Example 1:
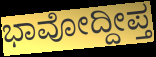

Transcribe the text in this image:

ಭಾವೋದ್ದೀಪ್ತ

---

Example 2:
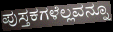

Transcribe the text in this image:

ಪುಸ್ತಕಗಳೆಲ್ಲವನ್ನೂ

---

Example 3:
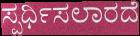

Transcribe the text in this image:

ಸ್ಪರ್ಧಿಸಲಾರದೆ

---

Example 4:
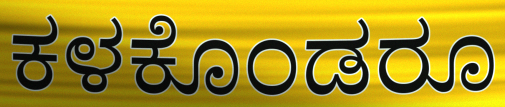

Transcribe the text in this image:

ಕಳಕೊಂಡರೂ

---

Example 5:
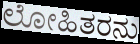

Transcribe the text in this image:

ಲೋಹಿತರನು